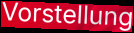
Vorstellung